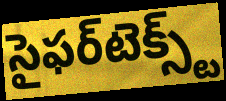
సైఫర్‌టెక్స్ట్